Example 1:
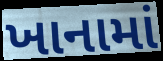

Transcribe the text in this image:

ખાનામાં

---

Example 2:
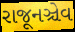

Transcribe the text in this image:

રાજૂનઞ્ચેવ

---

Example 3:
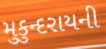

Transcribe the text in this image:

મુકુન્દરાયની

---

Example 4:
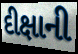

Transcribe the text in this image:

દીક્ષાની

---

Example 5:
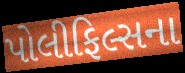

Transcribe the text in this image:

પોલીફિલ્સના